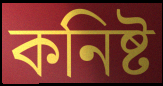
কনিষ্ট